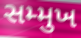
સમ્મુખ